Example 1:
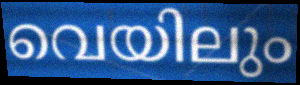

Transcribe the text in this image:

വെയിലും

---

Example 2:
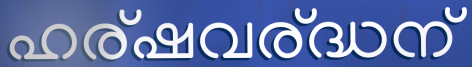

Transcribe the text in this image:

ഹര്ഷവര്ദ്ധന്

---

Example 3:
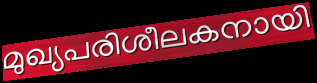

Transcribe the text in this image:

മുഖ്യപരിശീലകനായി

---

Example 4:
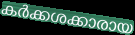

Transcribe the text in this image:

കർക്കശക്കാരായ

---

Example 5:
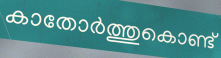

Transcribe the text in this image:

കാതോർത്തുകൊണ്ട്